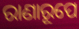
ରାଣାରୂପେ